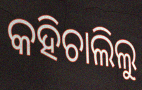
କହିଚାଲିଲୁ